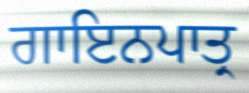
ਗਾਇਨਪਾਤ੍ਰ